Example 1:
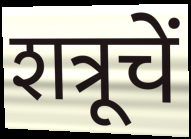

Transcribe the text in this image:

शत्रूचें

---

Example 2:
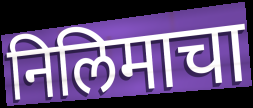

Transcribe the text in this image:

निलिमाचा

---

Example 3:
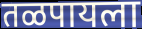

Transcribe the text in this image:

तळपायला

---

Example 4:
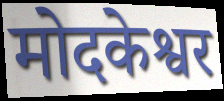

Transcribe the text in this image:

मोदकेश्वर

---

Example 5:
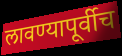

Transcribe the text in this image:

लावण्यापूर्वीच